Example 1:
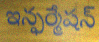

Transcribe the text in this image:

ఇన్ఫర్మేషన్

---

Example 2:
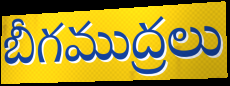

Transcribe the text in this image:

బీగముద్రలు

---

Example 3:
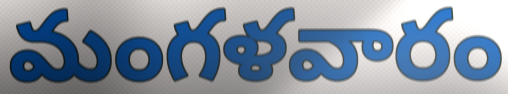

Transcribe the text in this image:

మంగళవారం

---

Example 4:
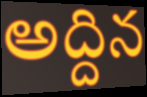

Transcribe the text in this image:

అద్దిన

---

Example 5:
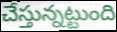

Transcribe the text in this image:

చేస్తున్నట్టుంది